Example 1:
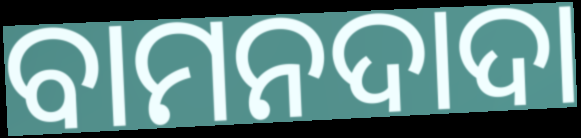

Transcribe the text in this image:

ବାମନଦାଦା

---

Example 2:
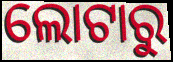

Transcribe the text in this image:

ଲୋଟାରୁ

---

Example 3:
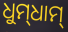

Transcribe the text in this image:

ଧୁମ୍‌ଧାମ୍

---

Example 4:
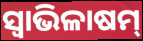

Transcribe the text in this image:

ସ୍ବାଭିଳାଷମ୍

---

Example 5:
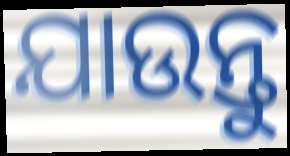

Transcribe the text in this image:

ଯାଉନ୍ତୁ